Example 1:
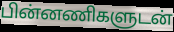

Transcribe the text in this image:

பின்னணிகளுடன்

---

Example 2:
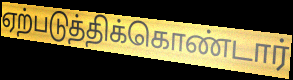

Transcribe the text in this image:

ஏற்படுத்திக்கொண்டார்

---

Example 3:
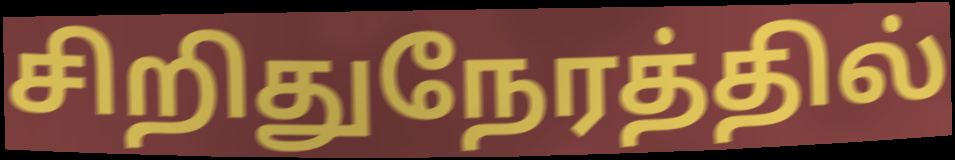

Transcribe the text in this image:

சிறிதுநேரத்தில்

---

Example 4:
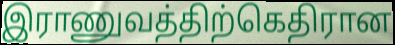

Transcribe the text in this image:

இராணுவத்திற்கெதிரான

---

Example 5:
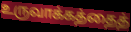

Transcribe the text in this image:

உருவாக்கத்தைத்